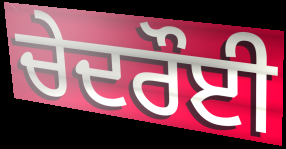
ਚੇਦਰੌਈ